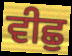
ਵੀਛੁ